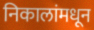
निकालांमधून